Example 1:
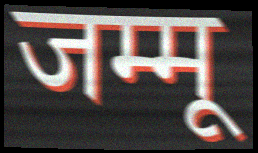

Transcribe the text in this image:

जम्मू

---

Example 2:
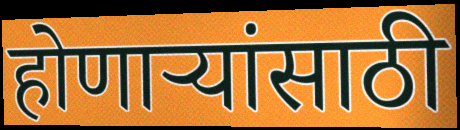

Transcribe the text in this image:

होणाऱ्यांसाठी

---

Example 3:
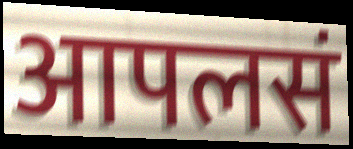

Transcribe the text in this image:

आपलसं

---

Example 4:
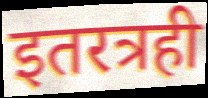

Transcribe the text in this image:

इतरत्रही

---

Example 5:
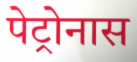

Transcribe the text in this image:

पेट्रोनास